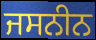
ਜਸਨੀਨ